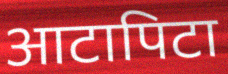
आटापिटा